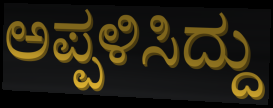
ಅಪ್ಪಳಿಸಿದ್ದು